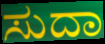
ಸುದಾ